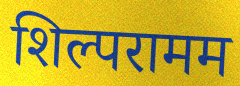
शिल्परामम